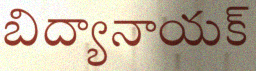
బిద్యానాయక్